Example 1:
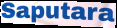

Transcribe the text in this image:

Saputara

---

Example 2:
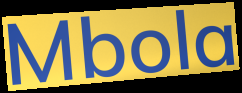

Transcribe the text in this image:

Mbola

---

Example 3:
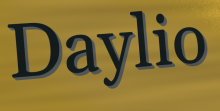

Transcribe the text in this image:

Daylio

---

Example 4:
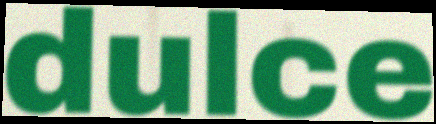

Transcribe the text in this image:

dulce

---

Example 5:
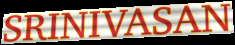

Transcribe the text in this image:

SRINIVASAN